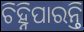
ଚିହ୍ନିପାରନ୍ତି